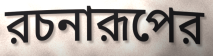
রচনারূপের